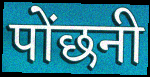
पोंछनी